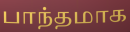
பாந்தமாக